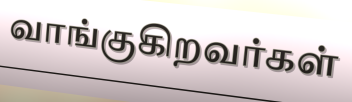
வாங்குகிறவர்கள்